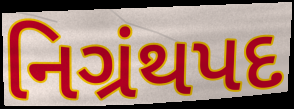
નિગ્રંથપદ